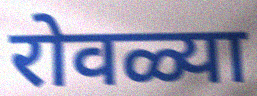
रोवळ्या